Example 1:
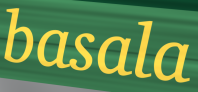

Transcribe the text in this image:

basala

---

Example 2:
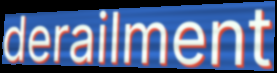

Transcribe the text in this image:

derailment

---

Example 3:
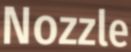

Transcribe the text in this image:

Nozzle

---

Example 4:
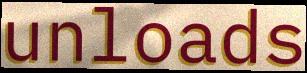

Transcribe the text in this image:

unloads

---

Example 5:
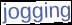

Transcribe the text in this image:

jogging